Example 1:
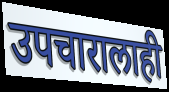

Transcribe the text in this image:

उपचारालाही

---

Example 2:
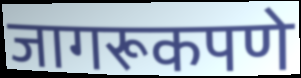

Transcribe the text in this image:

जागरूकपणे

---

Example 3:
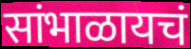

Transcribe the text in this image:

सांभाळायचं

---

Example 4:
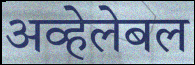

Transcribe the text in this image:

अव्हेलेबल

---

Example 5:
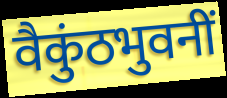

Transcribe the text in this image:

वैकुंठभुवनीं